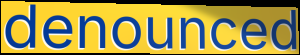
denounced